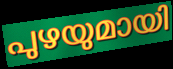
പുഴയുമായി